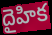
దైహిక